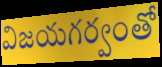
విజయగర్వంతో